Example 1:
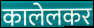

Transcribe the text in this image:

कालेलकर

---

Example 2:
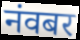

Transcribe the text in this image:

नंवबर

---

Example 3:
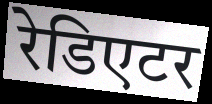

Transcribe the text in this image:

रेडिएटर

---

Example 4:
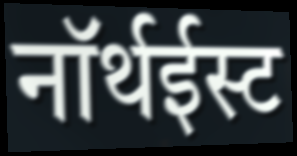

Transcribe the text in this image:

नॉर्थईस्‍ट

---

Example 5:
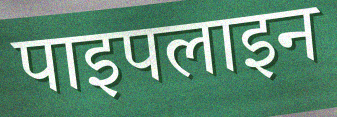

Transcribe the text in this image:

पाइपलाइन